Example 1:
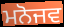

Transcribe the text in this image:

ਮਨੋਜਵ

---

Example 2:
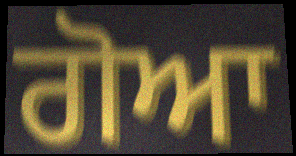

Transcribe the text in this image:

ਗੋਆ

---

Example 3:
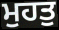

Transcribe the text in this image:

ਮੁਹਤੁ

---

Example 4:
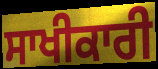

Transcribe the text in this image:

ਸਾਖੀਕਾਰੀ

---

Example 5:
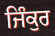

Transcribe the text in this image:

ਜਿੰਕੁਰ